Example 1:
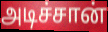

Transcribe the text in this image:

அடிச்சான்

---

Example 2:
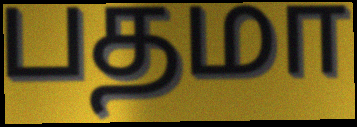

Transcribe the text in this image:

பதமா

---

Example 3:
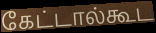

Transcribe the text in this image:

கேட்டால்கூட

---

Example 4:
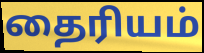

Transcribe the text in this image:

தைரியம்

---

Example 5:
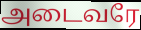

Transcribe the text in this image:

அடைவரே